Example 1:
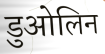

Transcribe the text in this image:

डुओलिन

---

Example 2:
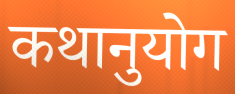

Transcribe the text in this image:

कथानुयोग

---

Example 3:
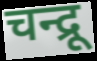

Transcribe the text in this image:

चन्द्रू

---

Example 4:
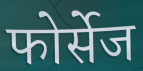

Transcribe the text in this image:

फोर्सेज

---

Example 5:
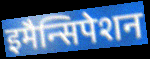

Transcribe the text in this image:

इमैन्सिपेशन